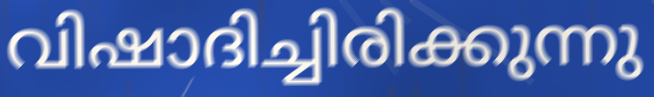
വിഷാദിച്ചിരിക്കുന്നു